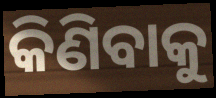
କିଣିବାକୁ